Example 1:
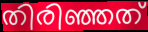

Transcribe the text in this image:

തിരിഞ്ഞത്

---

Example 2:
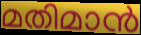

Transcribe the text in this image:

മതിമാൻ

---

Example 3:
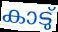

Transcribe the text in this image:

കാടു്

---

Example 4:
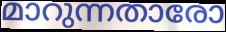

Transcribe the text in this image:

മാറുന്നതാരോ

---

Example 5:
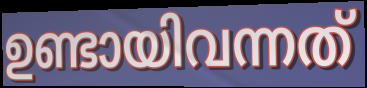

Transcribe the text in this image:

ഉണ്ടായിവന്നത്